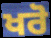
ਖਰੋ